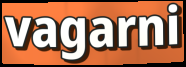
vagarni